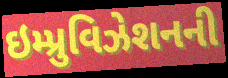
ઇમ્પ્રુવિઝેશનની